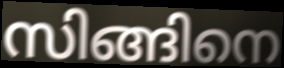
സിങ്ങിനെ